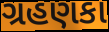
ગ્રહણકા